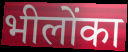
भीलोंका